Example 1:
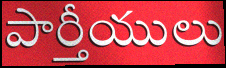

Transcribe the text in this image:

పార్తీయులు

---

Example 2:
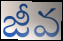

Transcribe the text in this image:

జీవ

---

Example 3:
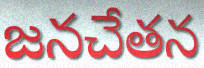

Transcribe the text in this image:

జనచేతన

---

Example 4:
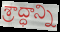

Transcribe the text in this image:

శ్రాద్ధాన్ని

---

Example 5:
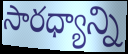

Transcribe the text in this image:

సారధ్యాన్ని